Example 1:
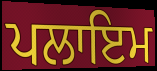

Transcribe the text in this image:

ਪਲਾਇਮ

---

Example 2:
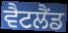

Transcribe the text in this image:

ਵੈਟਲੈਂਡ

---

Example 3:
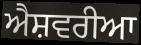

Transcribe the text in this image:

ਐਸ਼ਵਰੀਆ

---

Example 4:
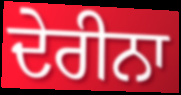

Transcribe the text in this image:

ਦੇਰੀਨਾ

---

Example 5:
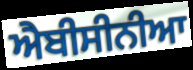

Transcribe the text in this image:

ਐਬੀਸੀਨੀਆ